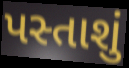
પસ્તાશું